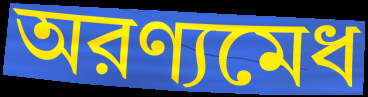
অরণ্যমেধ